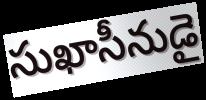
సుఖాసీనుడై